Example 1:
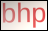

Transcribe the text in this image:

bhp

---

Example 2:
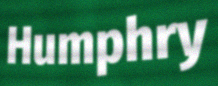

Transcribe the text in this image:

Humphry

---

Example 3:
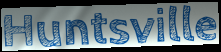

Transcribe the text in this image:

Huntsville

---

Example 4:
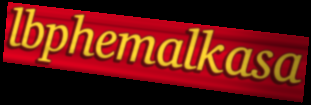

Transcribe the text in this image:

lbphemalkasa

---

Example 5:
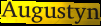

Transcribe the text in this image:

Augustyn